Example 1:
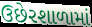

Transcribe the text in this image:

ઉછેરશાળામાં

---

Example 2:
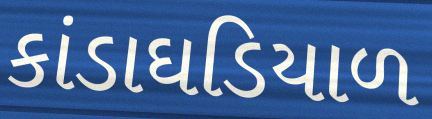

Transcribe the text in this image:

કાંડાઘડિયાળ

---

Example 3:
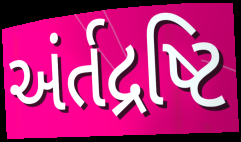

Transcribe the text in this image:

અંર્તદ્રષ્ટિ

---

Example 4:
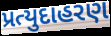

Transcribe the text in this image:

પ્રત્યુદાહરણ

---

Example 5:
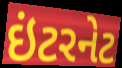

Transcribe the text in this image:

ઇંટરનેટ